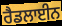
ਰੈਡਲਾਈਨ